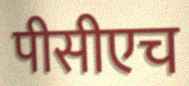
पीसीएच